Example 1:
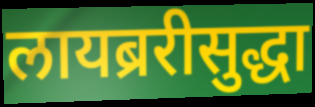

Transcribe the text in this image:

लायब्ररीसुद्धा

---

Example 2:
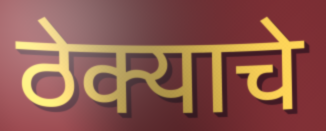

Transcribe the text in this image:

ठेक्याचे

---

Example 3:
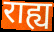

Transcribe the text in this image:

राह्य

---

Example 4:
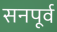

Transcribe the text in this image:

सनपूर्व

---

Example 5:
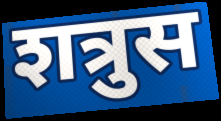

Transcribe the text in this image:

शत्रुस